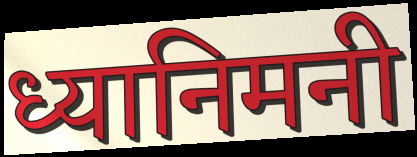
ध्यानिमनी